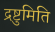
द्रष्टुमिति